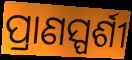
ପ୍ରାଣସ୍ପର୍ଶୀ